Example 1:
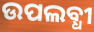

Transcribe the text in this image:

ଉପଲବ୍ଧୀ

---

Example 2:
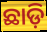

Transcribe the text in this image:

ଛାଡ଼ି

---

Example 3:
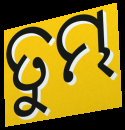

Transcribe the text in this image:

ତୁମ୍ଭ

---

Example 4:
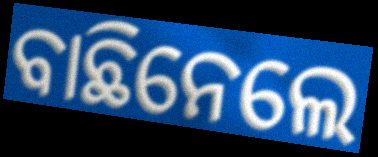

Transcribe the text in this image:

ବାଛିନେଲେ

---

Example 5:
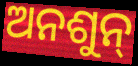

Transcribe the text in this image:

ଅନଶୁନ୍